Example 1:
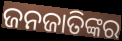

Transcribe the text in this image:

ଜନଜାତିଙ୍କର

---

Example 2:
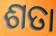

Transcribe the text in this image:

ଶତା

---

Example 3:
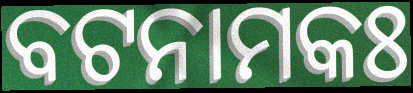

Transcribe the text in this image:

ବଟନାମକଃ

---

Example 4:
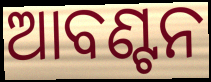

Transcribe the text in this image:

ଆବଣ୍ଟନ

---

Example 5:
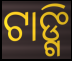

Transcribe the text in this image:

ଟାଙ୍ଗି